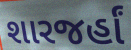
શારજર્હાં